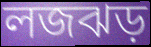
লজঝড়